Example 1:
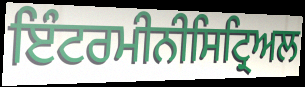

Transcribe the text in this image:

ਇੰਟਰਮੀਨੀਸਿਟ੍ਰਿਅਲ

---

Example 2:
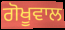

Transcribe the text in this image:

ਗੋਖੂਵਾਲ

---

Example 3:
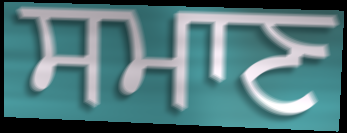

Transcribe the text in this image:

ਸਮਾਣ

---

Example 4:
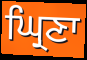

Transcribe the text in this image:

ਘ੍ਰਿਣਾ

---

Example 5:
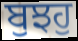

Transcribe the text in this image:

ਬੁਝਹੁ